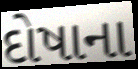
દોષાના